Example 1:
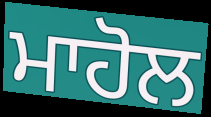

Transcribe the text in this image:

ਮਾਹੋਲ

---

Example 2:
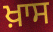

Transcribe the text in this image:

ਖ਼ਾਸ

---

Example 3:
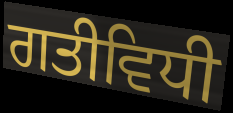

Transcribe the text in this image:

ਗਤੀਵਿਧੀ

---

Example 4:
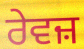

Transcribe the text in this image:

ਰੇਵਜ਼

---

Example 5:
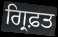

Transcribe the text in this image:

ਗ੍ਰਿਫ਼ਤ